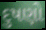
દુષણો